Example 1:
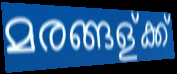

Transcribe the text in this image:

മരങ്ങള്ക്ക്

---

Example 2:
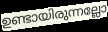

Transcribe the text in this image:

ഉണ്ടായിരുന്നല്ലോ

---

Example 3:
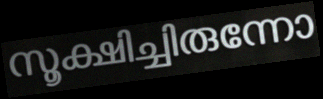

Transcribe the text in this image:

സൂക്ഷിച്ചിരുന്നോ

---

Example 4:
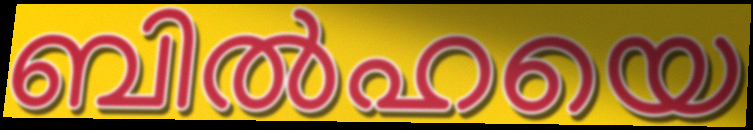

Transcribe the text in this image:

ബിൽഹയെ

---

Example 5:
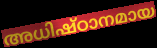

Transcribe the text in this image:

അധിഷ്ഠാനമായ